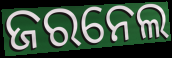
ଜରନେଲ